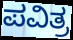
ಪವಿತ್ರ